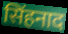
सिंहनाद